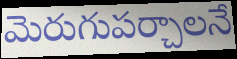
మెరుగుపర్చాలనే